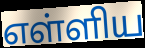
எள்ளிய